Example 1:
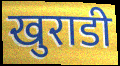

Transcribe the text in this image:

खुराडी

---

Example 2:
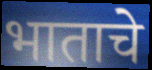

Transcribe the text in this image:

भाताचे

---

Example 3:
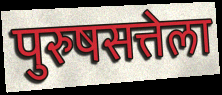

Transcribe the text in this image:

पुरुषसत्तेला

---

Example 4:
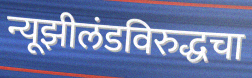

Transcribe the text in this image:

न्यूझीलंडविरुद्धचा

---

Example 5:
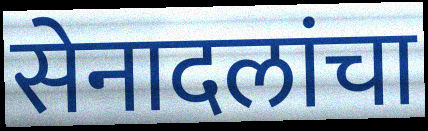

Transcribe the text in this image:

सेनादलांचा